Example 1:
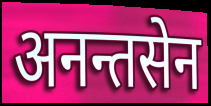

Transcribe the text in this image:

अनन्तसेन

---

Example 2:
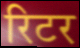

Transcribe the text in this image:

रिटर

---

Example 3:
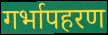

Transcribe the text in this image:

गर्भापहरण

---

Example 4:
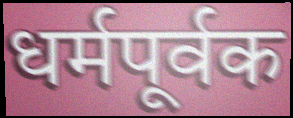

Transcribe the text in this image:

धर्मपूर्वक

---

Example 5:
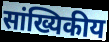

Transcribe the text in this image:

सांख्यिकीय